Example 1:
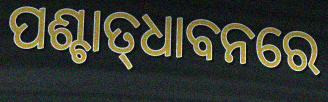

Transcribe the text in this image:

ପଶ୍ଚାତ୍‍ଧାବନରେ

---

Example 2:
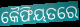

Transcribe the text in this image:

କୈଫିୟତରେ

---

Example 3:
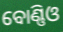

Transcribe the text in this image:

ବୋଣ୍ଣିଓ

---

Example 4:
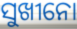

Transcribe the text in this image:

ସୁଖୀନୋ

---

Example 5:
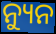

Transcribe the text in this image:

ନ୍ୟୁନ